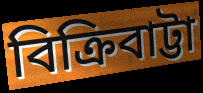
বিক্রিবাট্টা